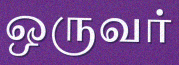
ஒருவர்